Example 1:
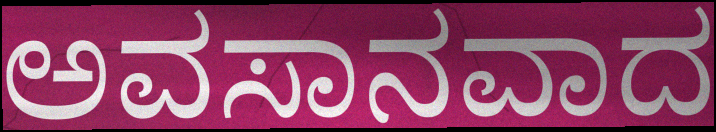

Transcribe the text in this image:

ಅವಸಾನವಾದ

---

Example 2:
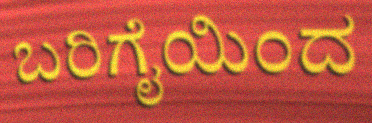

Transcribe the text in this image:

ಬರಿಗೈಯಿಂದ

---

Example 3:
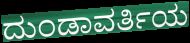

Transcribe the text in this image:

ದುಂಡಾವರ್ತಿಯ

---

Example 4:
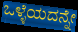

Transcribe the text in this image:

ಒಳ್ಳೆಯದನ್ನೇ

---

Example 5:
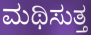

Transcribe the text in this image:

ಮಥಿಸುತ್ತ